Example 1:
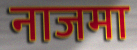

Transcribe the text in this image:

नाजमा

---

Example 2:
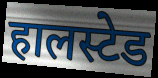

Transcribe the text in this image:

हालस्टेड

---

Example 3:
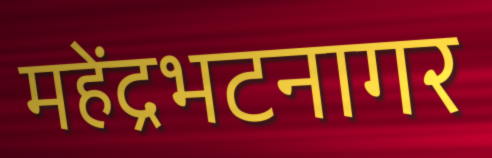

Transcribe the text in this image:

महेंद्रभटनागर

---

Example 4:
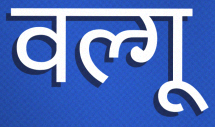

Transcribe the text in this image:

वल्गू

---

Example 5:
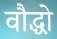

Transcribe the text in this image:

वौद्धो